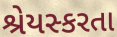
શ્રેયસ્કરતા